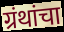
ग्रंथांचा